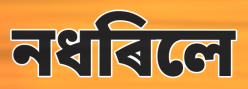
নধৰিলে